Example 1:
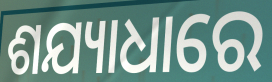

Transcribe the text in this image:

ଶଯ୍ୟାଧାରେ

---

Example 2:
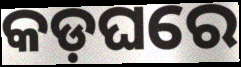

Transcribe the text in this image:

କଡ଼ଘରେ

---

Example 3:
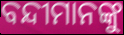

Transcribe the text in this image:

ବନ୍ଦୀମାନଙ୍କୁ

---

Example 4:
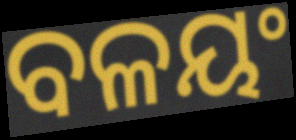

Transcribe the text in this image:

ବଳୟଂ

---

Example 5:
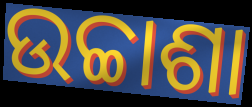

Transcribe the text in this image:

ଉଚ୍ଚାଶା